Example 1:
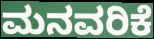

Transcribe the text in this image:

ಮನವರಿಕೆ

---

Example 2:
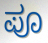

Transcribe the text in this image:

ಪೂ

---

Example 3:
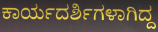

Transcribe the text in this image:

ಕಾರ್ಯದರ್ಶಿಗಳಾಗಿದ್ದ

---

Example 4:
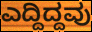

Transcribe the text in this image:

ಎದ್ದಿದ್ದವು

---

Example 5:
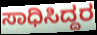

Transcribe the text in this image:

ಸಾಧಿಸಿದ್ದರ